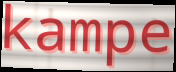
kampe